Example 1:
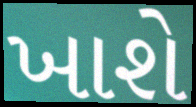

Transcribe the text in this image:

ખાશે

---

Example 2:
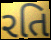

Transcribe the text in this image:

રતિ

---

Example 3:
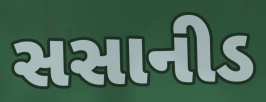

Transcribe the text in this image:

સસાનીડ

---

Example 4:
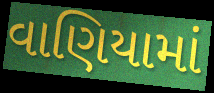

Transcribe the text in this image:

વાણિયામાં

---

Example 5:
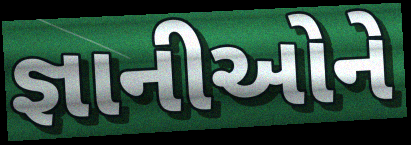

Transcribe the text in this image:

જ્ઞાનીઓને